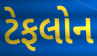
ટેફલોન